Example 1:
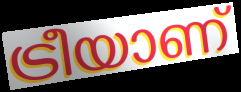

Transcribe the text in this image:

ട്രീയാണ്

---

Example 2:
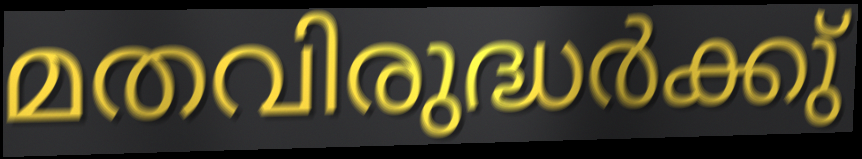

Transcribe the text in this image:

മതവിരുദ്ധർക്കു്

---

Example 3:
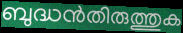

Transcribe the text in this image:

ബുദ്ധൻതിരുത്തുക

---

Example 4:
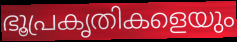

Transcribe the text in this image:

ഭൂപ്രകൃതികളെയും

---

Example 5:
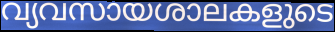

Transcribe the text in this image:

വ്യവസായശാലകളുടെ